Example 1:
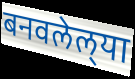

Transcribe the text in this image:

बनवलेल्या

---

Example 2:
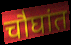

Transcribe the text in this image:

चौघांत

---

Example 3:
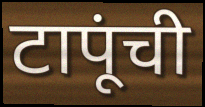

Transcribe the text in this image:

टापूंची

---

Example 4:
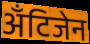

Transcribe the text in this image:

अँटिजेन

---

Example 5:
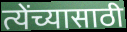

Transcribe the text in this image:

त्येंच्यासाठी